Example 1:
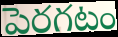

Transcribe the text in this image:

పెరగటం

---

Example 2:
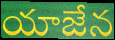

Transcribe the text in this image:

యాజేన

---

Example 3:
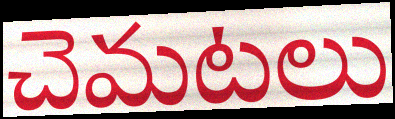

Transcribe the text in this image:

చెమటలు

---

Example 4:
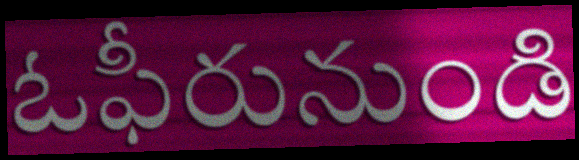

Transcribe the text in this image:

ఓఫీరునుండి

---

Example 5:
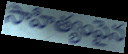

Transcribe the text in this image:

సాహిత్యంపైన